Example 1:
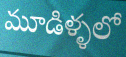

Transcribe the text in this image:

మూడిళ్ళలో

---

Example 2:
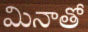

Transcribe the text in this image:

మినాతో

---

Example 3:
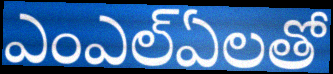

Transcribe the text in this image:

ఎంఎల్ఏలతో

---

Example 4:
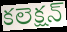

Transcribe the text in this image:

కలెక్షన్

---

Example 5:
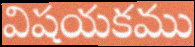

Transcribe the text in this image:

విషయకము